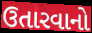
ઉતારવાનો